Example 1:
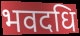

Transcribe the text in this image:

भवदधि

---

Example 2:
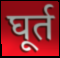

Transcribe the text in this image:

घूर्त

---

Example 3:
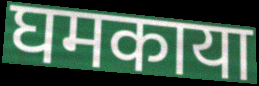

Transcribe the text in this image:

घमकाया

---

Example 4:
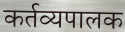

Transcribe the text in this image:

कर्तव्यपालक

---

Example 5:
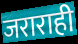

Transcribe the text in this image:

जराराही